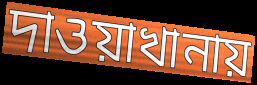
দাওয়াখানায়